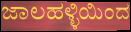
ಜಾಲಹಳ್ಳಿಯಿಂದ